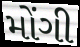
મોંગી